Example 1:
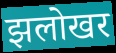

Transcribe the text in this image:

झलोखर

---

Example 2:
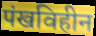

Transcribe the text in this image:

पंखविहीन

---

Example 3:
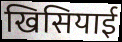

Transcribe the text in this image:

खिसियाई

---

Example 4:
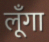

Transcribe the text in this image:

लूँगा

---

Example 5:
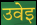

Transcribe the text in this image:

उवेइ